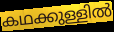
കഥക്കുള്ളിൽ